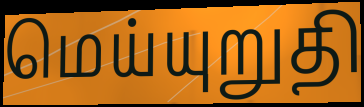
மெய்யுறுதி